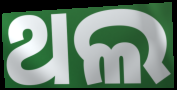
ଥଲ